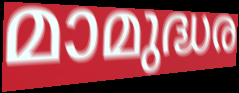
മാമുദ്ധര